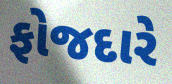
ફોજદારે